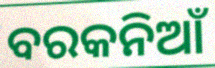
ବରକନିଆଁ